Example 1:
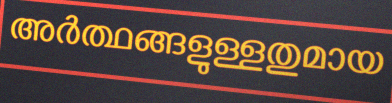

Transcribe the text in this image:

അർത്ഥങ്ങളുള്ളതുമായ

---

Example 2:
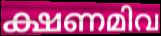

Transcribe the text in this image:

ക്ഷണമിവ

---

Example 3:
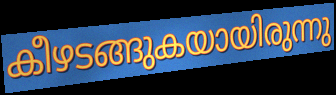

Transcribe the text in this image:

കീഴടങ്ങുകയായിരുന്നു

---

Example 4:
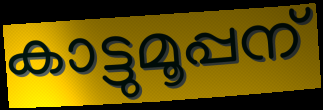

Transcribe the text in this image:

കാട്ടുമൂപ്പന്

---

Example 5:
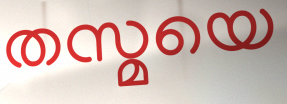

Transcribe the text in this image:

തസ്മയെ